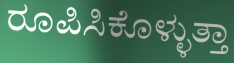
ರೂಪಿಸಿಕೊಳ್ಳುತ್ತಾ